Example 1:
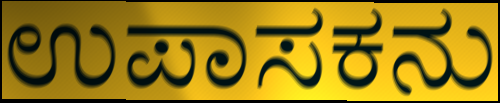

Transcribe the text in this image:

ಉಪಾಸಕನು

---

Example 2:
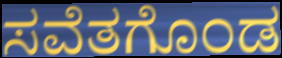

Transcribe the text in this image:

ಸವೆತಗೊಂಡ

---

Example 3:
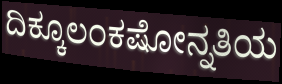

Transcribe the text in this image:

ದಿಕ್ಕೂಲಂಕಷೋನ್ನತಿಯ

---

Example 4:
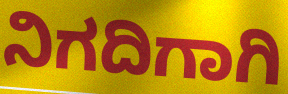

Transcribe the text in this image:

ನಿಗದಿಗಾಗಿ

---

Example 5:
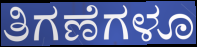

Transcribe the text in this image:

ತಿಗಣೆಗಳೂ